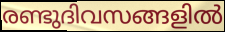
രണ്ടുദിവസങ്ങളിൽ